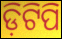
ଡ଼ିଟିପି